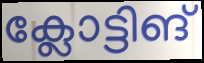
ക്ലോട്ടിങ്